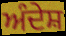
ਅੰਦੇਸ਼